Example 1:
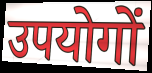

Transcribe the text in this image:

उपयोगों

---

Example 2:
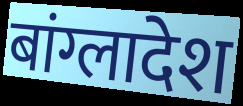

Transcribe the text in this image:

बांग्लादेश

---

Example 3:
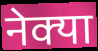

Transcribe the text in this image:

नेक्या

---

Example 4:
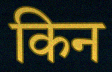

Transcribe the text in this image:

किन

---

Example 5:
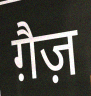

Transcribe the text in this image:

ग़ैज़